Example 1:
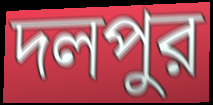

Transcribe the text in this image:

দলপুর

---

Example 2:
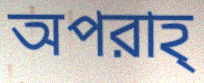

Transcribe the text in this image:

অপরাহ্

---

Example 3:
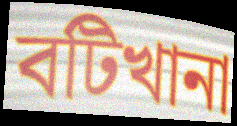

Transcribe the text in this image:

বটিখানা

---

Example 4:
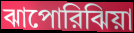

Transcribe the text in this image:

ঝাপোরিঝিয়া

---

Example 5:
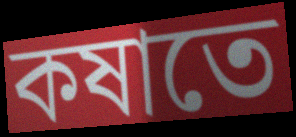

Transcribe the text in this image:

কষাতে